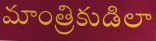
మాంత్రికుడిలా